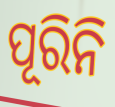
ପୂରିନି